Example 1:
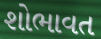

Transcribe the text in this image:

શોભાવત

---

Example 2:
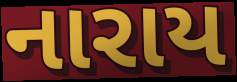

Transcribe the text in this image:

નારાય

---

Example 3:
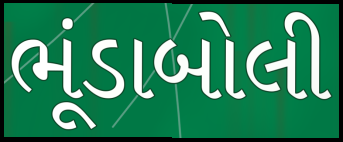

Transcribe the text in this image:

ભૂંડાબોલી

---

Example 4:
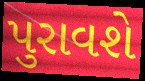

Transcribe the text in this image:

પુરાવશે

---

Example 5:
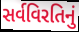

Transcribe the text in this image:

સર્વવિરતિનું